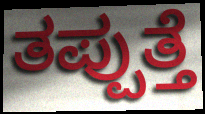
ತಪ್ಪುತ್ತೆ